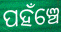
ପହଁଞ୍ଚେ